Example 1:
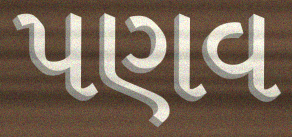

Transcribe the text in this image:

પણવ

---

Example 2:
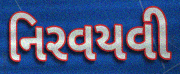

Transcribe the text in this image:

નિરવયવી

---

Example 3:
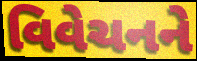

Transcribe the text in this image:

વિવેચનને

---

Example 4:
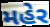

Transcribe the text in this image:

મહેર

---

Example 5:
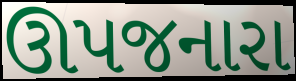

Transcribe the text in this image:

ઊપજનારા